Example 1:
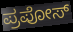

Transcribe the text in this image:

ಪ್ರಪೋಸ್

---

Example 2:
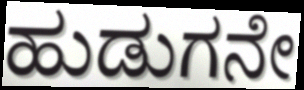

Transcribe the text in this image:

ಹುಡುಗನೇ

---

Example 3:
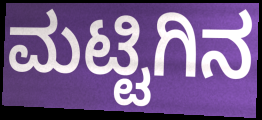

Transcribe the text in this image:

ಮಟ್ಟಿಗಿನ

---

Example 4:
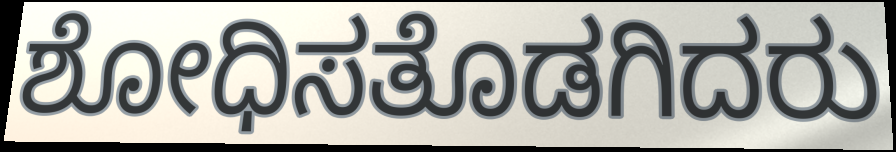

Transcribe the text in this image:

ಶೋಧಿಸತೊಡಗಿದರು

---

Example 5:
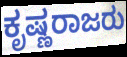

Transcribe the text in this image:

ಕೃಷ್ಣರಾಜರು